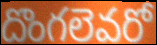
దొంగలెవరో